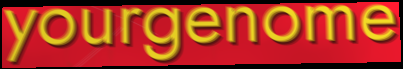
yourgenome